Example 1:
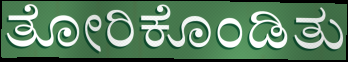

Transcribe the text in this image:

ತೋರಿಕೊಂಡಿತು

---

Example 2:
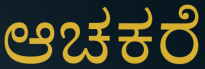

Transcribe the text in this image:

ಆಚಕರೆ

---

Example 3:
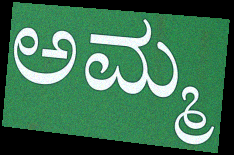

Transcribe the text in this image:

ಅಮ್ಮ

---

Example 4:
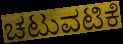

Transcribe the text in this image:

ಚಟುವಟಿಕೆ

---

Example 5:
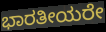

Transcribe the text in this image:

ಭಾರತೀಯರೇ